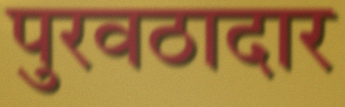
पुरवठादार